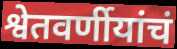
श्वेतवर्णीयांचं